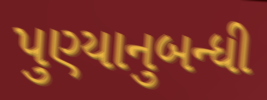
પુણ્યાનુબન્ધી